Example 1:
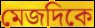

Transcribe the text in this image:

মেজদিকে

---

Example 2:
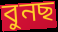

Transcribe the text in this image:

বুনছ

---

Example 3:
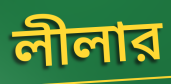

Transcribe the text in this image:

লীলার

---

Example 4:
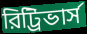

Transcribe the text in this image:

রিট্রিভার্স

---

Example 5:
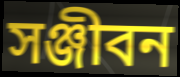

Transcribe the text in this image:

সঞ্জীবন